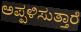
ಅಪ್ಪಳಿಸುತ್ತಾರೆ